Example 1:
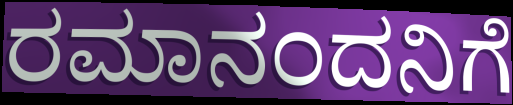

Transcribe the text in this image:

ರಮಾನಂದನಿಗೆ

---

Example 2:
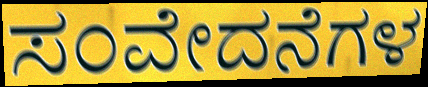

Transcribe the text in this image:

ಸಂವೇದನೆಗಳ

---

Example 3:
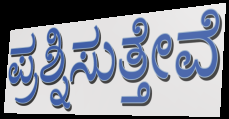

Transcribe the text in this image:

ಪ್ರಶ್ನಿಸುತ್ತೇವೆ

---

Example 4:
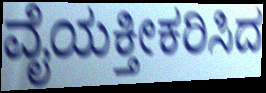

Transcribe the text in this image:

ವೈಯಕ್ತೀಕರಿಸಿದ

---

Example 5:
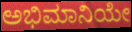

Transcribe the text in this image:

ಅಭಿಮಾನಿಯೇ